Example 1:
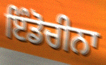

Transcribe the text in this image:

ਇੰਡੋਚੀਨਾ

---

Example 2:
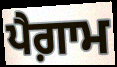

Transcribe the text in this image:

ਪੈਗ਼ਾਮ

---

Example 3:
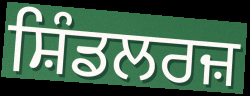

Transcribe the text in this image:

ਸ਼ਿੰਡਲਰਜ਼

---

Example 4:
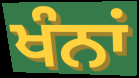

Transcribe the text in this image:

ਖੰਨਾਂ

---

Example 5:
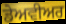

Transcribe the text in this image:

ਡੇਅਵੀਅਰ